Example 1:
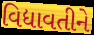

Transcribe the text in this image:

વિદ્યાવતીને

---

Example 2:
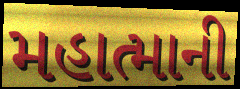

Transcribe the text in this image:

મહાત્માની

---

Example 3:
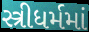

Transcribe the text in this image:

સ્ત્રીધર્મમાં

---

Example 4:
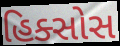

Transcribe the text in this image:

હિક્સોસ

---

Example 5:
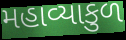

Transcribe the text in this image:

મહાવ્યાકુળ